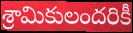
శ్రామికులందరికీ